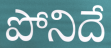
పోనిదే